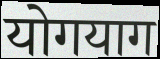
योगयाग